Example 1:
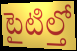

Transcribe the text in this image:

టైటిల్తో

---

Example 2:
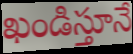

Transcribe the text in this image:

ఖండిస్తూనే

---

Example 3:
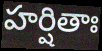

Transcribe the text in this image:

హర్షితాః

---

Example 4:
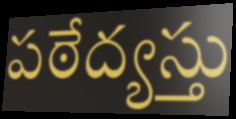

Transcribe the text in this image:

పఠేద్యస్తు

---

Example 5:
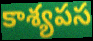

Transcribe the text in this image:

కాశ్యపస